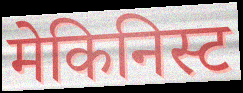
मेकिनिस्ट